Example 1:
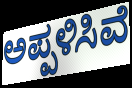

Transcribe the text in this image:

ಅಪ್ಪಳಿಸಿವೆ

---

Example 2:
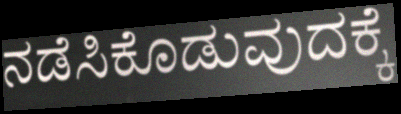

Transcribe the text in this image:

ನಡೆಸಿಕೊಡುವುದಕ್ಕೆ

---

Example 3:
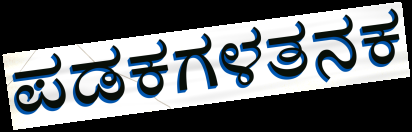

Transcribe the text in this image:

ಪಡಕಗಳತನಕ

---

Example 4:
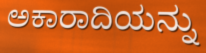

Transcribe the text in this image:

ಅಕಾರಾದಿಯನ್ನು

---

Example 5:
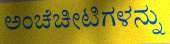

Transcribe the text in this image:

ಅಂಚೆಚೀಟಿಗಳನ್ನು